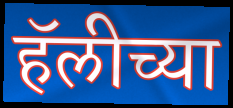
हॅलीच्या